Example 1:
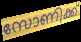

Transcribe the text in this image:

സോണിക്ക്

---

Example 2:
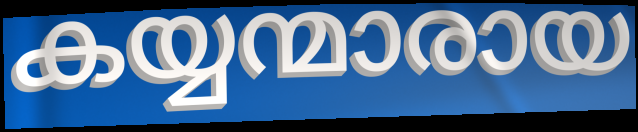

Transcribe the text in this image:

കയ്യന്മാരായ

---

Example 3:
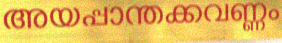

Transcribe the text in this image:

അയപ്പാന്തക്കവണ്ണം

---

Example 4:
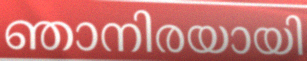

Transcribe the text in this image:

ഞാനിരയായി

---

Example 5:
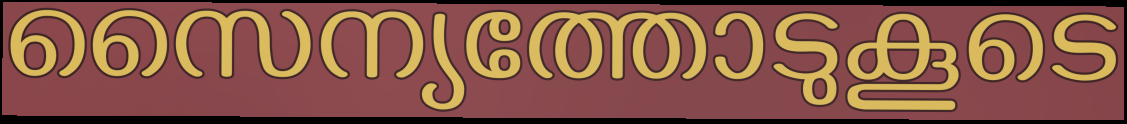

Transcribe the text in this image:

സൈന്യത്തോടുകൂടെ